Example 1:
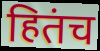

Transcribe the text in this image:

हितंच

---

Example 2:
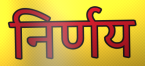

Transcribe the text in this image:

निर्णय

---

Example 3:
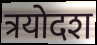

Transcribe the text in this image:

त्रयोदश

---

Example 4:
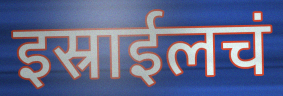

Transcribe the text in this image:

इस्राईलचं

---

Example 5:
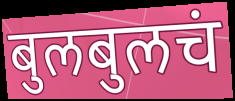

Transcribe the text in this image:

बुलबुलचं